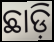
ଛାଡ଼ି